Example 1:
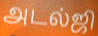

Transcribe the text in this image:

அடல்ஜி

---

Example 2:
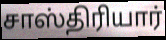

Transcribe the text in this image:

சாஸ்திரியார்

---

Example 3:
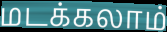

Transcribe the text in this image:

மடக்கலாம்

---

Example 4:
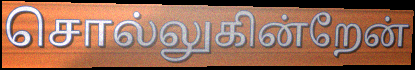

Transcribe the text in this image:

சொல்லுகின்றேன்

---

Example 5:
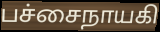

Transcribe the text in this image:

பச்சைநாயகி